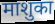
माशुका